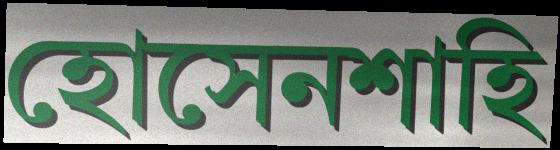
হোসেনশাহি